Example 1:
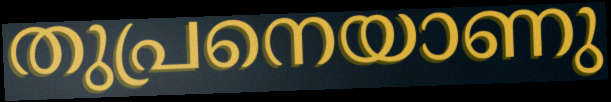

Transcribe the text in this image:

തുപ്രനെയാണു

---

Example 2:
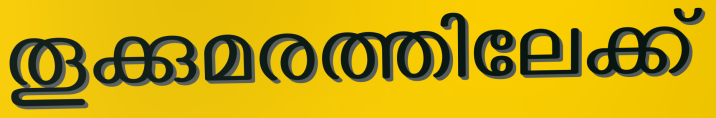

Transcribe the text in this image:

തൂക്കുമരത്തിലേക്ക്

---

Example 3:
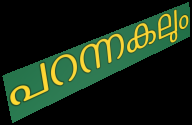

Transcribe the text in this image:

പറന്നകലും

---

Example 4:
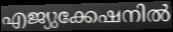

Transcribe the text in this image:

എജ്യുക്കേഷനിൽ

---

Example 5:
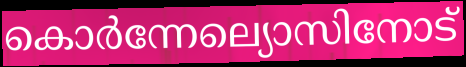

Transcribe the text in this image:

കൊർന്നേല്യൊസിനോട്